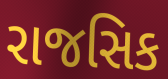
રાજસિક